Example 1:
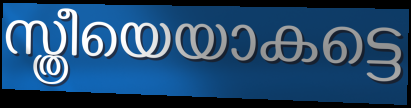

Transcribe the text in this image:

സ്ത്രീയെയാകട്ടെ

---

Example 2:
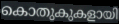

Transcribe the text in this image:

കൊതുകുകളായി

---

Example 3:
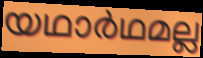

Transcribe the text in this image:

യഥാർഥമല്ല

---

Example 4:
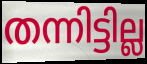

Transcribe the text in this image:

തന്നിട്ടില്ല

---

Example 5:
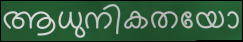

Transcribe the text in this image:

ആധുനികതയോ